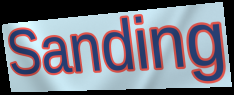
Sanding